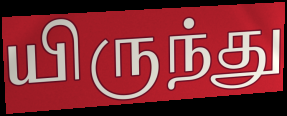
யிருந்து